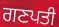
ਗਣਪਤੀ